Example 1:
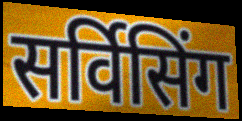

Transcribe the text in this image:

सर्विसिंग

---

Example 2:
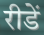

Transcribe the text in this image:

रीडें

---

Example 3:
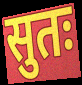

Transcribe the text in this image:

सुतः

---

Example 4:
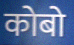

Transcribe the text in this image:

कोबो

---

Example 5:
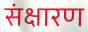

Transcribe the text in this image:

संक्षारण